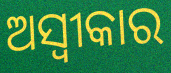
ଅସ୍ବୀକାର